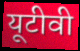
यूटीवी